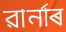
ৱাৰ্নাৰ